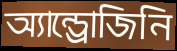
অ্যান্ড্রোজিনি